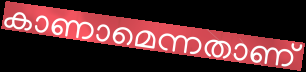
കാണാമെന്നതാണ്